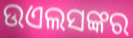
ଉଏଲସଙ୍କର